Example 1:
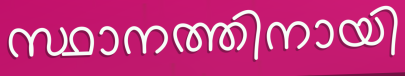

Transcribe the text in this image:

സ്ഥാനത്തിനായി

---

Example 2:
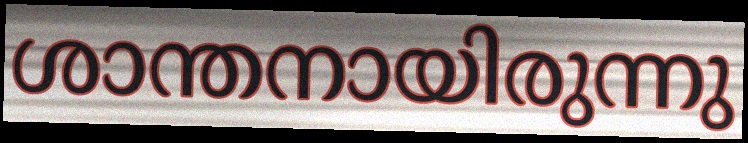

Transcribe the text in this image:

ശാന്തനായിരുന്നു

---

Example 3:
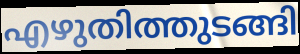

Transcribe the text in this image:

എഴുതിത്തുടങ്ങി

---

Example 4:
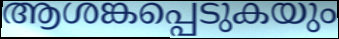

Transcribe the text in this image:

ആശങ്കപ്പെടുകയും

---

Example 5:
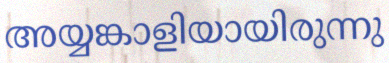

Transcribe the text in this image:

അയ്യങ്കാളിയായിരുന്നു